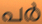
പർ